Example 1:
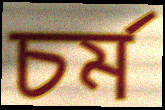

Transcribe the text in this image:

চর্ম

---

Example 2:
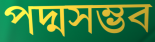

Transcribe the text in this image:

পদ্মসম্ভব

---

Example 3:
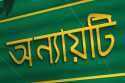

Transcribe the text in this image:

অন্যায়টি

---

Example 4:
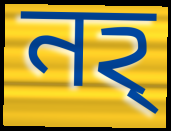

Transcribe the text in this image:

নহ্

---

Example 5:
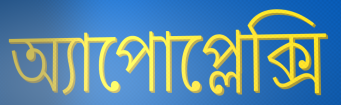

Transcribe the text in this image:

অ্যাপোপ্লেক্সি